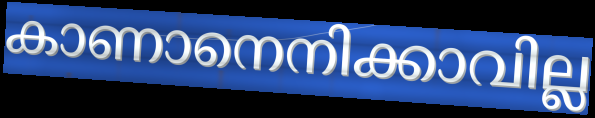
കാണാനെനിക്കാവില്ല